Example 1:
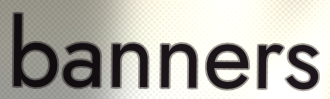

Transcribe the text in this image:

banners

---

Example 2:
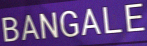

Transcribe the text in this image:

BANGALE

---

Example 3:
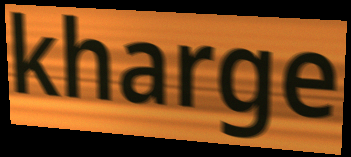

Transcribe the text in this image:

kharge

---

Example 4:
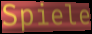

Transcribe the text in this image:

Spiele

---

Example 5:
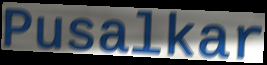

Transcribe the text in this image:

Pusalkar